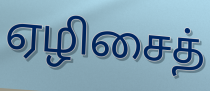
ஏழிசைத்